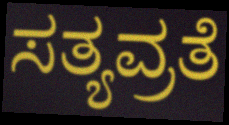
ಸತ್ಯವ್ರತೆ